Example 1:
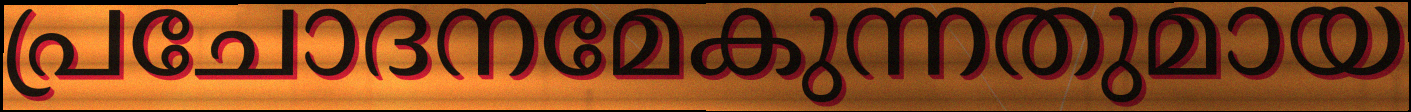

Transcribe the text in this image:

പ്രചോദനമേകുന്നതുമായ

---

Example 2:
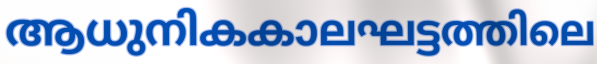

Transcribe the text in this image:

ആധുനികകാലഘട്ടത്തിലെ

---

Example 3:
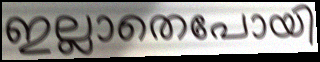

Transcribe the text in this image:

ഇല്ലാതെപോയി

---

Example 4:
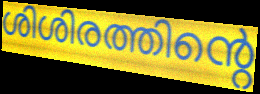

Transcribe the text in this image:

ശിശിരത്തിന്റെ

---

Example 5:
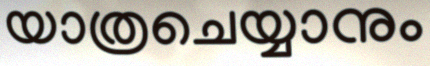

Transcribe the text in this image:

യാത്രചെയ്യാനും